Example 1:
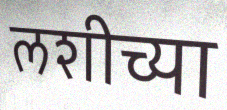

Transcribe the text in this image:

लशीच्या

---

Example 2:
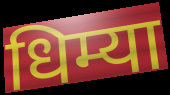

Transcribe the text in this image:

धिम्या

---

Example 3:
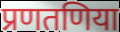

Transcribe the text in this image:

प्रणतणिया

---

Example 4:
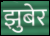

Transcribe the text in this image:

झुबेर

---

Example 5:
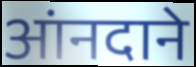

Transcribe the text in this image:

आंनदाने